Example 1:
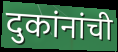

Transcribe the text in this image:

दुकांनांची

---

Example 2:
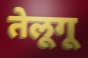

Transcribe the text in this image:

तेलूगू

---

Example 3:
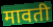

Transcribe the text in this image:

मावती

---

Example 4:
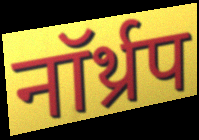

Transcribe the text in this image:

नॉर्थ्रप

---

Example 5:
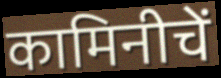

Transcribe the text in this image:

कामिनीचें